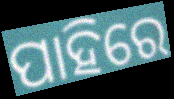
ପାହିରେ